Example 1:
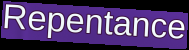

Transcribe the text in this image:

Repentance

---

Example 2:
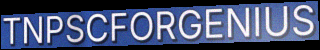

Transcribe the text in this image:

TNPSCFORGENIUS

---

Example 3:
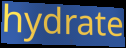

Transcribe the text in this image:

hydrate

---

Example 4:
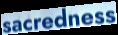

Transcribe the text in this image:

sacredness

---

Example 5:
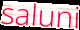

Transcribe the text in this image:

saluni